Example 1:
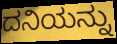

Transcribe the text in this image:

ದನಿಯನ್ನು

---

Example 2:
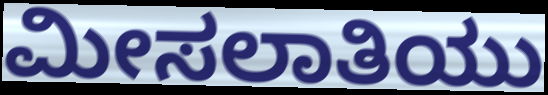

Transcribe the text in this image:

ಮೀಸಲಾತಿಯು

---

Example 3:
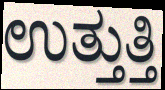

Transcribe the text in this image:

ಉತ್ತುತ್ತಿ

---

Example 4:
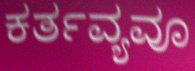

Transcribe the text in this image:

ಕರ್ತವ್ಯವೂ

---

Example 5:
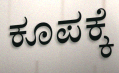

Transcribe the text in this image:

ಕೂಪಕ್ಕೆ